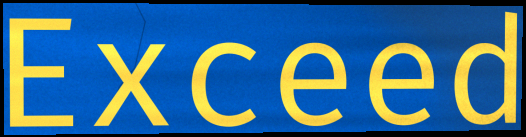
Exceed